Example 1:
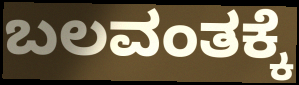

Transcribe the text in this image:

ಬಲವಂತಕ್ಕೆ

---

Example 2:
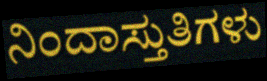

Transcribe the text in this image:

ನಿಂದಾಸ್ತುತಿಗಳು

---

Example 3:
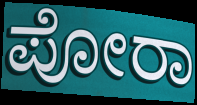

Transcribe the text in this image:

ಪೋರಾ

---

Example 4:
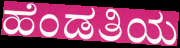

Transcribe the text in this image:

ಹೆಂಡತಿಯ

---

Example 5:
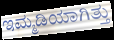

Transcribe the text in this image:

ಇಮ್ಮಡಿಯಾಗಿತ್ತು